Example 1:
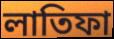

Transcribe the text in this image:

লাতিফা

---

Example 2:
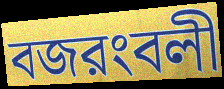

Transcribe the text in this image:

বজরংবলী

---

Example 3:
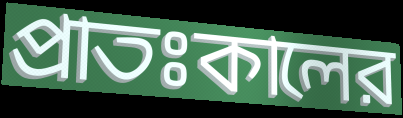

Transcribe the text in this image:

প্রাতঃকালের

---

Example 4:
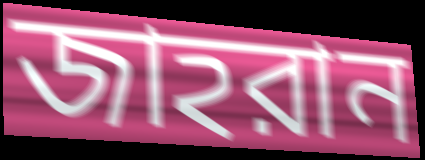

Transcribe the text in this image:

জাহরান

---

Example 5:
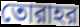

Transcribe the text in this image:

তোরাহর